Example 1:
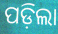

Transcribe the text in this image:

ପଡ଼ିଲା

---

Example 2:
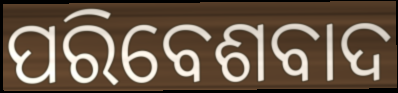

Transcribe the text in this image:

ପରିବେଶବାଦ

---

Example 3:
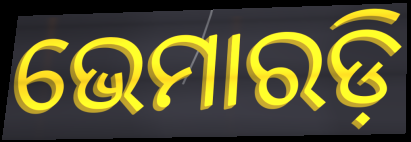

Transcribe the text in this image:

ଭେମାରଡ଼ି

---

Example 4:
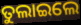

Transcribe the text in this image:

ତୁଲାଇଲେ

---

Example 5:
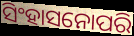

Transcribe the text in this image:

ସିଂହାସନୋପରି